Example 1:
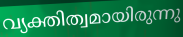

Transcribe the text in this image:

വ്യക്തിത്വമായിരുന്നു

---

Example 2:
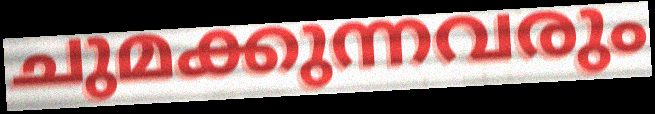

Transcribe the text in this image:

ചുമക്കുന്നവരും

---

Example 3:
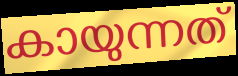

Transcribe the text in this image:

കായുന്നത്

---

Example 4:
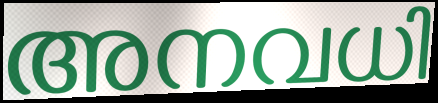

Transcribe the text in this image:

അനവധി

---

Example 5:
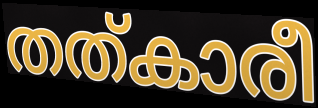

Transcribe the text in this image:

തത്കാരീ